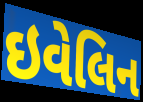
ઇવેલિન